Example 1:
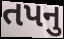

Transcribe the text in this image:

તપનુ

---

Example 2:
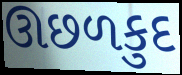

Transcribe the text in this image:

ઊછળકુદ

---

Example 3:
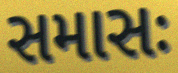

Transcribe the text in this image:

સમાસઃ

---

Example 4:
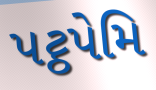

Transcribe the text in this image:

પટ્ઠપેમિ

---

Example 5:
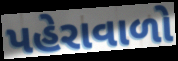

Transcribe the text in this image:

પહેરાવાળો